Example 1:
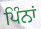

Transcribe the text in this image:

ਪਿੰਨਾਂ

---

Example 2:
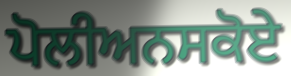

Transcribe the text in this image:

ਪੋਲੀਅਨਸਕੋਏ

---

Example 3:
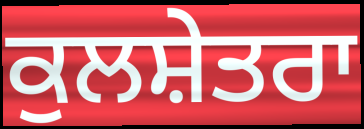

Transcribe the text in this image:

ਕੁਲਸ਼ੇਤਰਾ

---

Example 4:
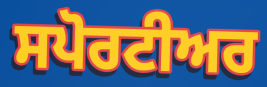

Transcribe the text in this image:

ਸਪੋਰਟੀਅਰ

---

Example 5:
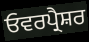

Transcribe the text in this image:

ਓਵਰਪ੍ਰੈਸ਼ਰ